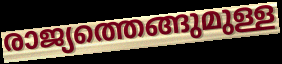
രാജ്യത്തെങ്ങുമുള്ള